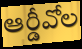
ఆర్డీవోల